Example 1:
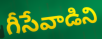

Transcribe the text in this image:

గీసేవాడిని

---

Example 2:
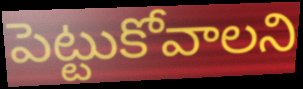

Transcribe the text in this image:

పెట్టుకోవాలని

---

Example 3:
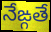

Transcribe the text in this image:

నేఙ్గతే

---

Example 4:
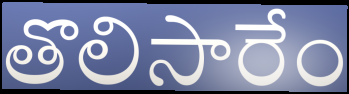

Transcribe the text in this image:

తొలిసారేం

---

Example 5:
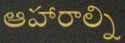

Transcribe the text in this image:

ఆహారాల్ని